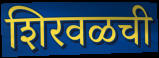
शिरवळची